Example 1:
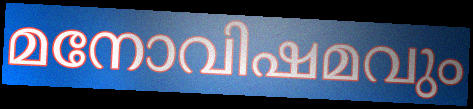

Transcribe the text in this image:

മനോവിഷമവും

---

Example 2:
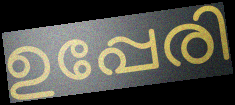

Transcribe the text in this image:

ഉപ്പേരി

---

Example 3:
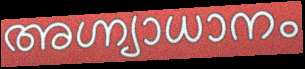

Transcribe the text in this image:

അഗ്ന്യാധാനം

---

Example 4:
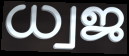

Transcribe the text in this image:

ധ്വജ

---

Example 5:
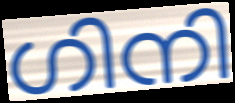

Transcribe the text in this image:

ഗിനി